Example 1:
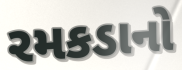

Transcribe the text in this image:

રમકડાનો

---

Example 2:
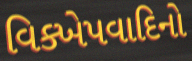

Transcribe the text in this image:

વિક્ખેપવાદિનો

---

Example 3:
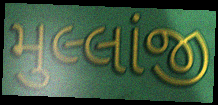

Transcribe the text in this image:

મુલ્લાંજી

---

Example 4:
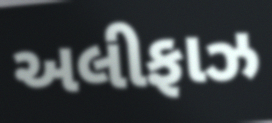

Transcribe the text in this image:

અલીફાઝ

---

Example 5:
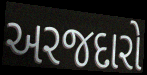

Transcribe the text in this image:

અરજદારો